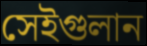
সেইগুলান